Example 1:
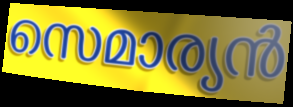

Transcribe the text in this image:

സെമാര്യൻ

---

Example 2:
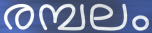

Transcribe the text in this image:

രമ്പലം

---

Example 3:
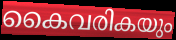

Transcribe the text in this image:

കൈവരികയും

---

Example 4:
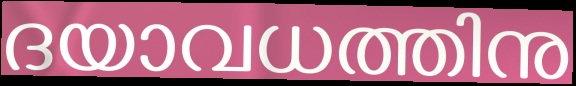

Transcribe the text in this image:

ദയാവധത്തിനു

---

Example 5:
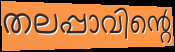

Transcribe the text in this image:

തലപ്പാവിന്റെ